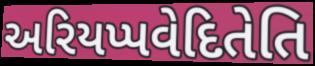
અરિયપ્પવેદિતેતિ